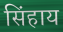
सिंहाय